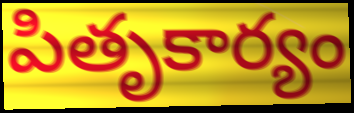
పితృకార్యం